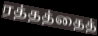
ரத்தத்தைத்